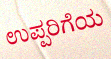
ಉಪ್ಪರಿಗೆಯ